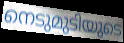
നെടുമുടിയുടെ